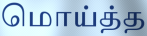
மொய்த்த